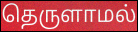
தெருளாமல்